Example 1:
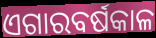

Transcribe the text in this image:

ଏଗାରବର୍ଷକାଳ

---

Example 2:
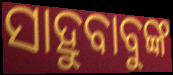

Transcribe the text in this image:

ସାହୁବାବୁଙ୍କ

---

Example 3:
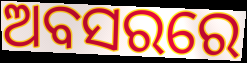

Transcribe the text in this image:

ଅବସରରେ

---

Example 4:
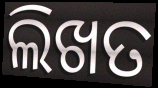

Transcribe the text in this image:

ଲିଖତ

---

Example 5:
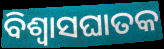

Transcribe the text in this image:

ବିଶ୍ୱାସଘାତକ